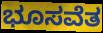
ಭೂಸವೆತ